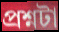
প্রশ্নটা